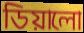
ডিয়ালো